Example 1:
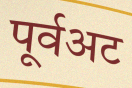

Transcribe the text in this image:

पूर्वअट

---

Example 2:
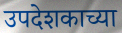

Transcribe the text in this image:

उपदेशकाच्या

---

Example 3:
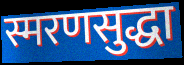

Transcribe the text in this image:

स्मरणसुद्धा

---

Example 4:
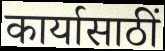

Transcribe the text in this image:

कार्यासाठीं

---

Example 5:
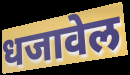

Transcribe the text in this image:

धजावेल